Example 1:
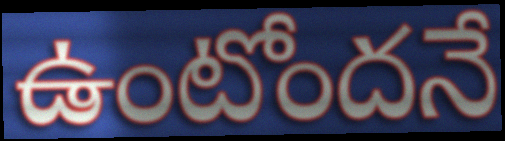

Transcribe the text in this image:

ఉంటోందనే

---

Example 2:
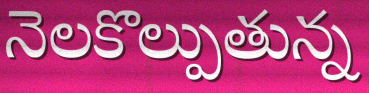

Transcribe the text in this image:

నెలకొల్పుతున్న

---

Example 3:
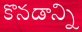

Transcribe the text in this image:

కొనడాన్ని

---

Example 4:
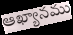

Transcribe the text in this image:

ఆఖ్యానము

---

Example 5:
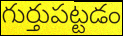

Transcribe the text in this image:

గుర్తుపట్టడం